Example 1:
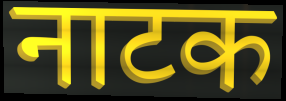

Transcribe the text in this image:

नाटक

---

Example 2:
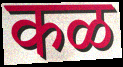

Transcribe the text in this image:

कळ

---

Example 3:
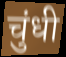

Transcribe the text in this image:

चुंधी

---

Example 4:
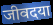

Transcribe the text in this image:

जीवदया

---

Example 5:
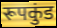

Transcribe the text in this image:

रूपकुंड